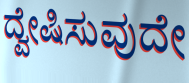
ದ್ವೇಷಿಸುವುದೇ